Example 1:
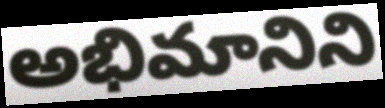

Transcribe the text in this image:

అభిమానిని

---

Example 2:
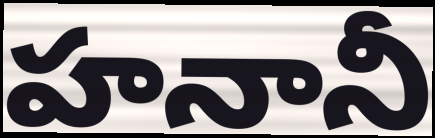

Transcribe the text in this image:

హనానీ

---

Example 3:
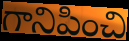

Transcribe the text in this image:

గానిపించి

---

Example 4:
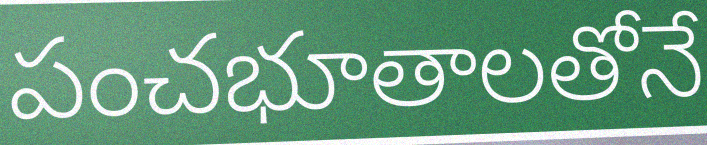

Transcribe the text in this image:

పంచభూతాలతోనే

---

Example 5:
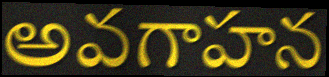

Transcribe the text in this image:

అవగాహన